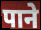
पाने